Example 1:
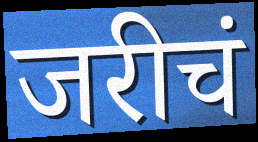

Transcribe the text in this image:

जरीचं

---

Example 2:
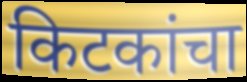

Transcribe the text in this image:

किटकांचा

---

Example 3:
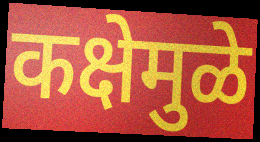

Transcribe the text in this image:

कक्षेमुळे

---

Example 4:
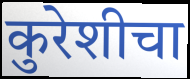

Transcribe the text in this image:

कुरेशीचा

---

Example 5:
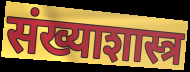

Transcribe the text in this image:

संख्याशास्त्र